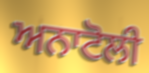
ਅਨਾਟੋਲੀ